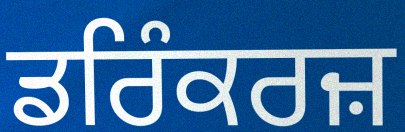
ਡਰਿੰਕਰਜ਼